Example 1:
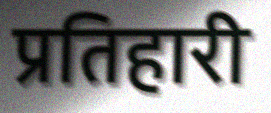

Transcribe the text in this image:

प्रतिहारी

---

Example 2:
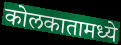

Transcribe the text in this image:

कोलकातामध्ये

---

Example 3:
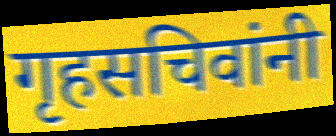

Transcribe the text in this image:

गृहसचिवांनी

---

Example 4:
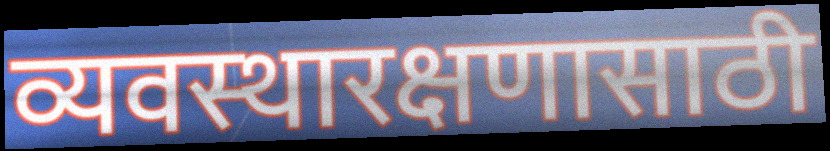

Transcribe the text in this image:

व्यवस्थारक्षणासाठी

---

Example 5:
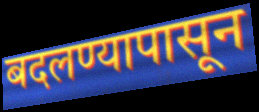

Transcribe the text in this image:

बदलण्यापासून